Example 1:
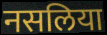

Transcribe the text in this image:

नसलिया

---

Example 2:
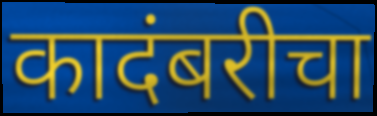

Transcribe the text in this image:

कादंबरीचा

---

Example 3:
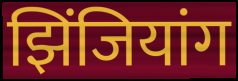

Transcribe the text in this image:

झिंजियांग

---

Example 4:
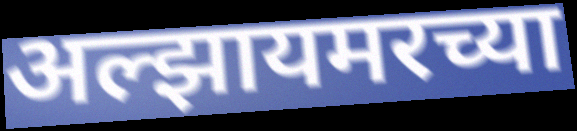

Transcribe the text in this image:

अल्झायमरच्या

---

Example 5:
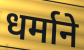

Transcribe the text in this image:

धर्माने